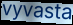
vyvasta